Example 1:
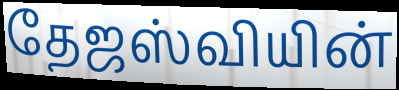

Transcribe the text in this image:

தேஜஸ்வியின்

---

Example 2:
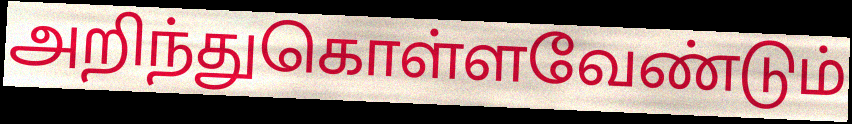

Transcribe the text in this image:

அறிந்துகொள்ளவேண்டும்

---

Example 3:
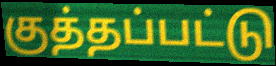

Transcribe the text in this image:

குத்தப்பட்டு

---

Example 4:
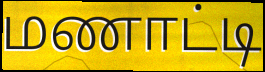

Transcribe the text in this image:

மணாட்டி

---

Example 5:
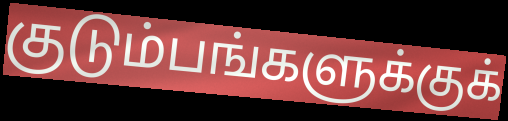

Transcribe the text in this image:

குடும்பங்களுக்குக்